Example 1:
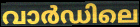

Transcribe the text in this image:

വാർഡിലെ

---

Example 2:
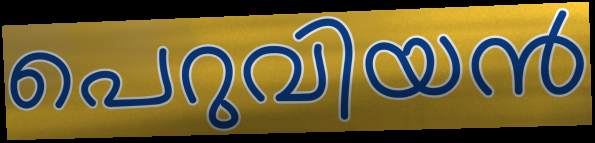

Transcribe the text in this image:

പെറുവിയൻ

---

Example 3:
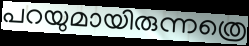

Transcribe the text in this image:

പറയുമായിരുന്നത്രെ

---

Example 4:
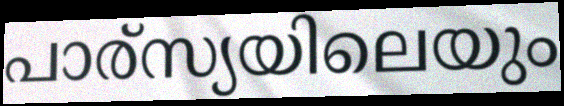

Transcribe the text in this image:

പാര്സ്യയിലെയും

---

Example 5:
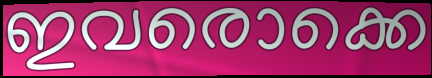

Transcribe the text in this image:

ഇവരൊക്കെ